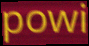
powi